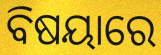
ବିଷୟାରେ